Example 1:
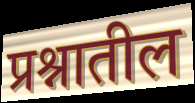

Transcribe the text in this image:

प्रश्नातील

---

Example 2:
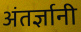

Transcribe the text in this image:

अंतर्ज्ञानी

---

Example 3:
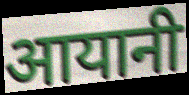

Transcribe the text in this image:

आयानी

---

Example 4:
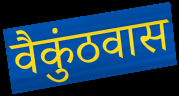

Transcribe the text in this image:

वैकुंठवास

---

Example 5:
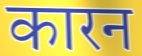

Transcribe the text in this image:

कारन